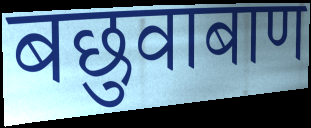
बछुवाबाण